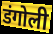
डंगोली